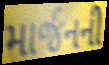
માર્જનની